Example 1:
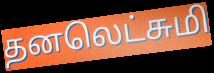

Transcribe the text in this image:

தனலெட்சுமி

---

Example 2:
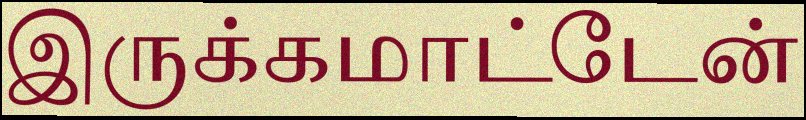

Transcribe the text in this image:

இருக்கமாட்டேன்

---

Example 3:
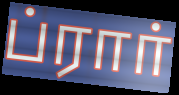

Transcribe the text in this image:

ப்ரார்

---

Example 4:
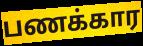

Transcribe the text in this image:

பணக்கார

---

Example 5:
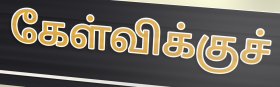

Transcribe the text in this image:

கேள்விக்குச்